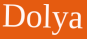
Dolya